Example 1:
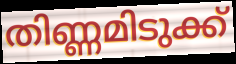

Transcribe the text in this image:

തിണ്ണമിടുക്ക്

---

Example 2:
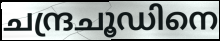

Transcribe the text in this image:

ചന്ദ്രചൂഡിനെ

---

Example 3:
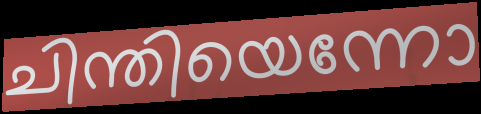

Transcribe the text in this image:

ചിന്തിയെന്നോ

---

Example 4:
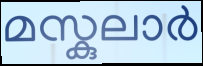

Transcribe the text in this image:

മസ്കുലാർ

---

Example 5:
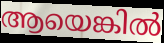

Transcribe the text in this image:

ആയെങ്കിൽ